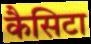
कैसिटा